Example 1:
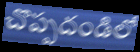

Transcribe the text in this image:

చొప్పదండిలో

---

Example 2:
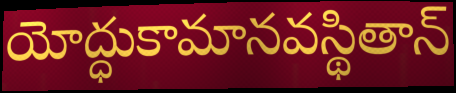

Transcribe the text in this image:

యోద్ధుకామానవస్థితాన్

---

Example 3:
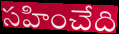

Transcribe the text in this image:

సహించేది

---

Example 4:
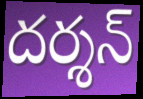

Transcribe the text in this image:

దర్శన్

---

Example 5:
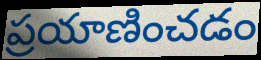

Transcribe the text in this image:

ప్రయాణించడం